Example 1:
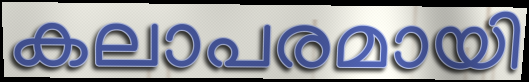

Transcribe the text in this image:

കലാപരമായി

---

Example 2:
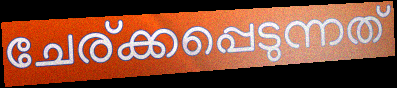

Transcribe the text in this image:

ചേര്ക്കപ്പെടുന്നത്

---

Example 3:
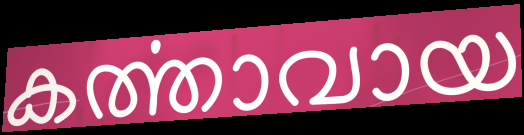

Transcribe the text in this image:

കൎത്താവായ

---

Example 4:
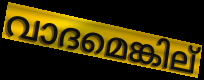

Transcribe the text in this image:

വാദമെങ്കില്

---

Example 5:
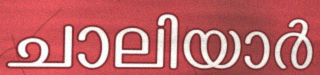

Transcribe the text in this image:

ചാലിയാർ